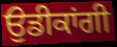
ਉਡੀਕਾਂਗੀ